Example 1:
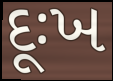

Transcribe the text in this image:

દૂઃખ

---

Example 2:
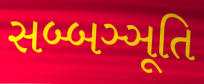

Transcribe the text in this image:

સબ્બઞ્ઞૂતિ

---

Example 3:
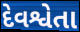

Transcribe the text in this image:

દેવશ્વેતા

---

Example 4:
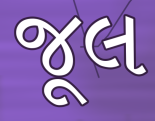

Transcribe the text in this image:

જૂલ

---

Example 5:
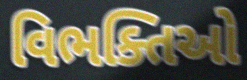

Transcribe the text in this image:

વિભક્તિઓ